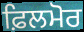
ਫ਼ਿਲਮੋਰ